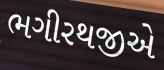
ભગીરથજીએ